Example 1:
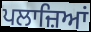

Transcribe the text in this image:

ਪਲਾਜ਼ਿਆਂ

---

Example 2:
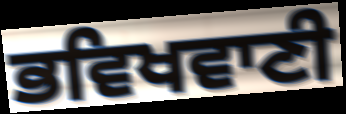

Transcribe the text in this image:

ਭਵਿਖਵਾਣੀ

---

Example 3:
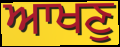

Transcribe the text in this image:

ਆਖਣੁ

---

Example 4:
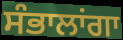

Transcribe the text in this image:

ਸੰਭਾਲਾਂਗਾ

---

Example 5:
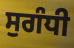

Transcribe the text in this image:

ਸੁਗੰਧੀ